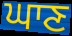
ਘਾਣ